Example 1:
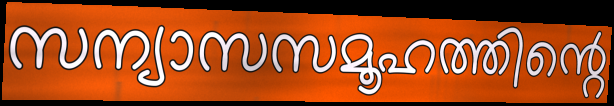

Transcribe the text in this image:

സന്യാസസമൂഹത്തിന്റെ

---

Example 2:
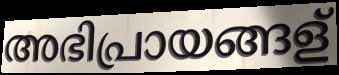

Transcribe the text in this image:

അഭിപ്രായങ്ങള്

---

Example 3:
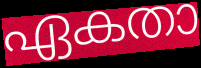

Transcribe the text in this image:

ഏകതാ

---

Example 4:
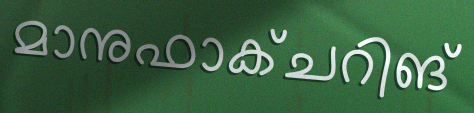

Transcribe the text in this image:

മാനുഫാക്ചറിങ്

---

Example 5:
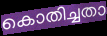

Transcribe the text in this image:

കൊതിച്ചതാ